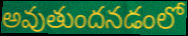
అవుతుందనడంలో